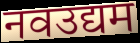
नवउद्यम